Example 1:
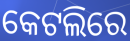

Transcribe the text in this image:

କେଟଲିରେ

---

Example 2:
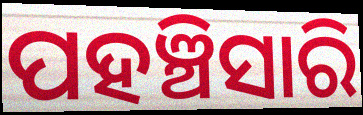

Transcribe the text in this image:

ପହଞ୍ଚିସାରି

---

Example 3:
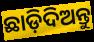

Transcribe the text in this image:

ଛାଡ଼ିଦିଅନ୍ତୁ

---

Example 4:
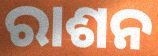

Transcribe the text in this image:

ରାଶନ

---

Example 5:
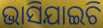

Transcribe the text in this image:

ଭାସିଯାଇଚି